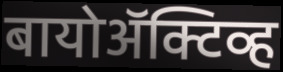
बायोॲक्टिव्ह